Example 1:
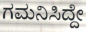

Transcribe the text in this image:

ಗಮನಿಸಿದ್ದೇ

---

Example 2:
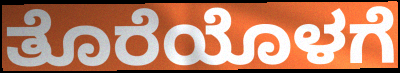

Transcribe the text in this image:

ತೊರೆಯೊಳಗೆ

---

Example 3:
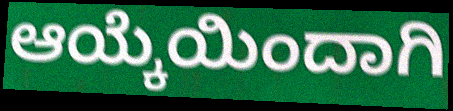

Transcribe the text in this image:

ಆಯ್ಕೆಯಿಂದಾಗಿ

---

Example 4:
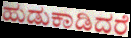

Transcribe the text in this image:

ಹುಡುಕಾಡಿದರೆ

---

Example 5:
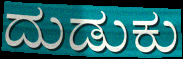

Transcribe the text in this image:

ದುಡುಕು